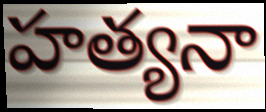
హత్యనా